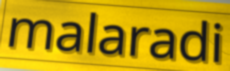
malaradi